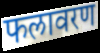
फलावरण